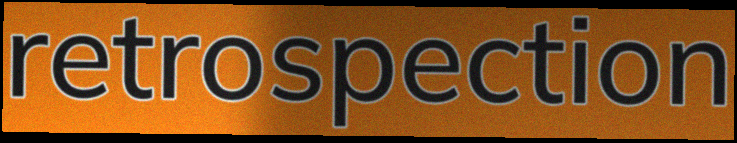
retrospection